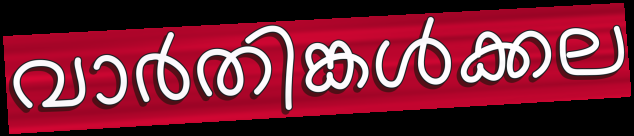
വാർതിങ്കൾക്കല